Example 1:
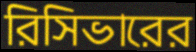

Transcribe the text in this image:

রিসিভারের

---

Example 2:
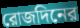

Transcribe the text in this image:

রোজদিনের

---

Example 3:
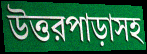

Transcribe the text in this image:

উত্তরপাড়াসহ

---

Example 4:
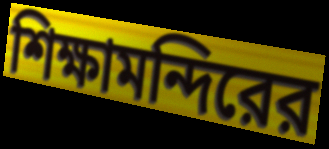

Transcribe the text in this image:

শিক্ষামন্দিরের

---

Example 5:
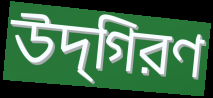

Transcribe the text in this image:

উদ্‌গিরণ